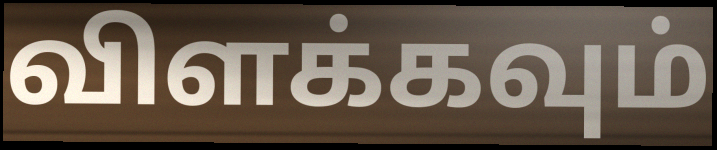
விளக்கவும்